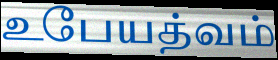
உபேயத்வம்